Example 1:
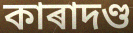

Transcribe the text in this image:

কাৰাদণ্ড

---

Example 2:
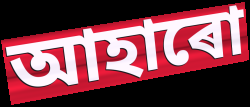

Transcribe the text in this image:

আহাৰো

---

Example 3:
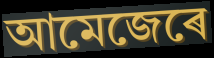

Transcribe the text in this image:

আমেজেৰে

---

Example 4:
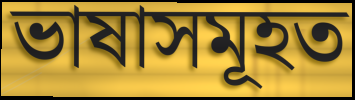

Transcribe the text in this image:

ভাষাসমূহত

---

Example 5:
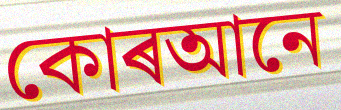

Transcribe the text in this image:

কোৰআনে